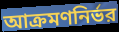
আক্রমণনির্ভর